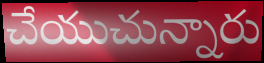
చేయుచున్నారు